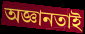
অজ্ঞানতাই